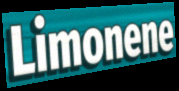
Limonene